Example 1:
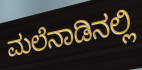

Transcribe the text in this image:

ಮಲೆನಾಡಿನಲ್ಲಿ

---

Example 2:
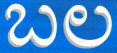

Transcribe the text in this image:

ಬಲ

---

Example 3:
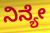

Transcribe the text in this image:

ನಿನ್ಯೇ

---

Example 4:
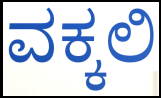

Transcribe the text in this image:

ವಕ್ಕಲಿ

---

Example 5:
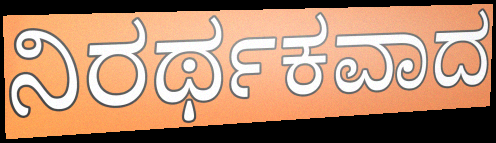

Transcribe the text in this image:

ನಿರರ್ಥಕವಾದ